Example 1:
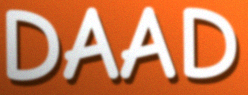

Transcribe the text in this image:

DAAD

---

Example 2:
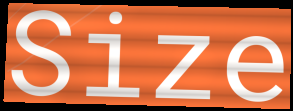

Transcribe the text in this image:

Size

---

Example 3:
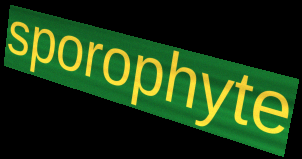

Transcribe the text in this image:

sporophyte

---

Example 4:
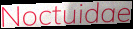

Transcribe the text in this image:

Noctuidae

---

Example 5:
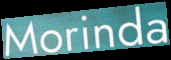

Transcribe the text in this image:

Morinda